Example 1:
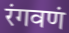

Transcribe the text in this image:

रंगवणं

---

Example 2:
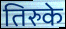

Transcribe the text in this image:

तिरुके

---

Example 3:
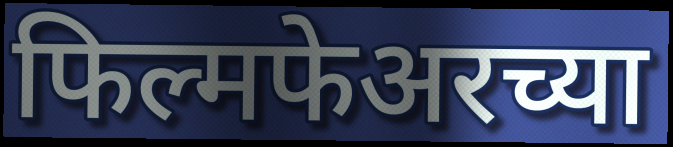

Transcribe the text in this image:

फिल्मफेअरच्या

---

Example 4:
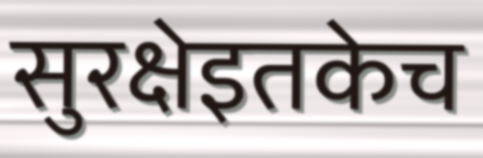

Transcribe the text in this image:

सुरक्षेइतकेच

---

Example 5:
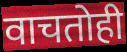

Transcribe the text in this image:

वाचतोही